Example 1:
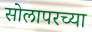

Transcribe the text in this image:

सोलापरच्या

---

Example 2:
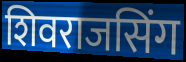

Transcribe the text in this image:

शिवराजसिंग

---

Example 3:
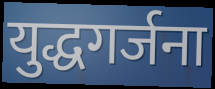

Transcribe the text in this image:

युद्धगर्जना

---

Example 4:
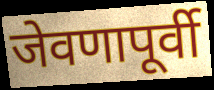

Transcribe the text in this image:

जेवणापूर्वी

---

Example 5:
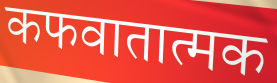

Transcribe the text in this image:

कफवातात्मक